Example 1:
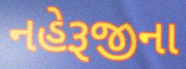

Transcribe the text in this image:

નહેરૂજીના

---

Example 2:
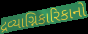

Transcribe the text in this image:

દ્રવ્યાગ્નિકારિકાનો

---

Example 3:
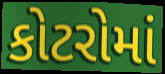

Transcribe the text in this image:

કોટરોમાં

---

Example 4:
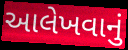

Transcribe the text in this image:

આલેખવાનું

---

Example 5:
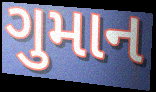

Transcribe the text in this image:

ગુમાન